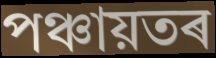
পঞ্চায়তৰ